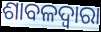
ଶାବଳଦ୍ୱାରା